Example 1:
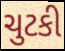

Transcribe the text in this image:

ચુટકી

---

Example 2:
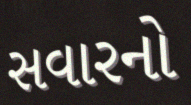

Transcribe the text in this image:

સવારનો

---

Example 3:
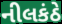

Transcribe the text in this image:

નીલકંઠે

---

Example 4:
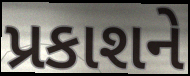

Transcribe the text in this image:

પ્રકાશને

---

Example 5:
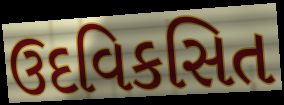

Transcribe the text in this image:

ઉદવિકસિત